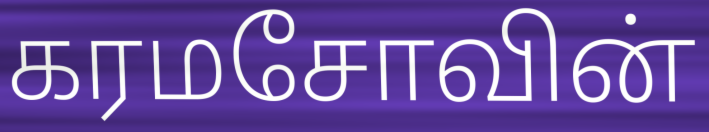
கரமசோவின்